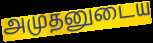
அமுதனுடைய